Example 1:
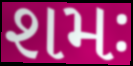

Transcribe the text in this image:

શમઃ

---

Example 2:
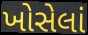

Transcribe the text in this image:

ખોસેલાં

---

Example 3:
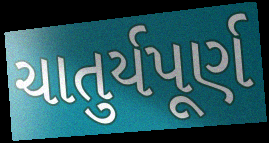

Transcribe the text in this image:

ચાતુર્યપૂર્ણ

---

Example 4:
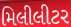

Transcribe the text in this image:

મિલીલીટર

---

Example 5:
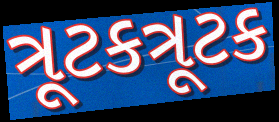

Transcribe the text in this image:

ત્રૂટકત્રૂટક